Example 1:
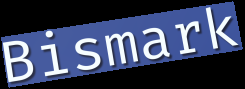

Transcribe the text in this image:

Bismark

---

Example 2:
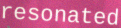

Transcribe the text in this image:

resonated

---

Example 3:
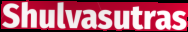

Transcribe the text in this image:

Shulvasutras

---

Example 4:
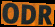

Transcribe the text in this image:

ODR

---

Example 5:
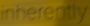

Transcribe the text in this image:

inherently